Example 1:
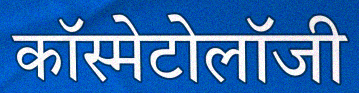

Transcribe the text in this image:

कॉस्मेटोलॉजी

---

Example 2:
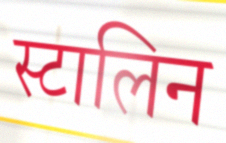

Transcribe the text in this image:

स्टालिन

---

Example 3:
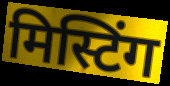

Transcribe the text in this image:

मिस्टिंग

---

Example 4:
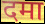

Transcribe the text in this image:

दमा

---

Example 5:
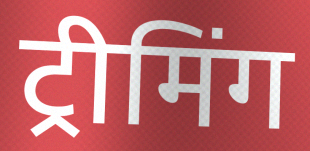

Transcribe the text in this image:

ट्रीमिंग